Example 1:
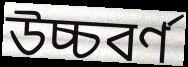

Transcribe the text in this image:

উচ্চবৰ্ণ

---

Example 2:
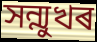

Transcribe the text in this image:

সন্মুখৰ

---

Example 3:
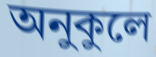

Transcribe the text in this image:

অনুকুলে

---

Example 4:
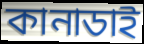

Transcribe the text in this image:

কানাডাই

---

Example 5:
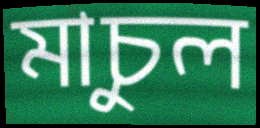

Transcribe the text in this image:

মাচুল